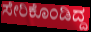
ಸೇರಿಕೊಂಡಿದ್ದ